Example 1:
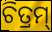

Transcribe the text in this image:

ଚିତ୍ରମ୍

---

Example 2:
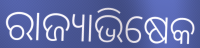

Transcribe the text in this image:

ରାଜ୍ୟାଭିଷେକ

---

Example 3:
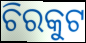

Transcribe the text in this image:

ଚିରକୁଟ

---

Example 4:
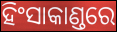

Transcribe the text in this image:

ହିଂସାକାଣ୍ଡରେ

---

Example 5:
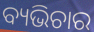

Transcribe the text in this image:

ବ୍ୟଭିଚାର